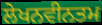
ਲੇਖਨਵੀਨਤਮ